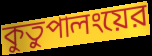
কুতুপালংয়ের